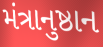
મંત્રાનુષ્ઠાન